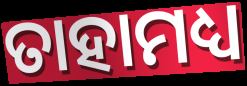
ତାହାମଧ୍ୟ